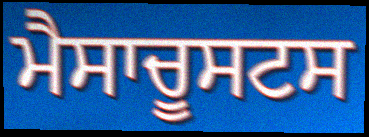
ਮੈਸਾਚੂਸਟਸ